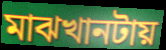
মাঝখানটায়